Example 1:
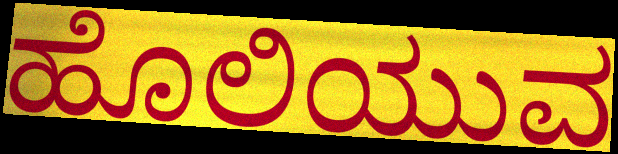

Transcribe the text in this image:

ಹೊಲಿಯುವ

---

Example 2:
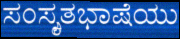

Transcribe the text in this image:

ಸಂಸ್ಕೃತಭಾಷೆಯು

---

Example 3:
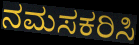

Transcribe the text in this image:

ನಮಸಕರಿಸಿ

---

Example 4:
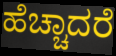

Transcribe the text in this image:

ಹೆಚ್ಚಾದರೆ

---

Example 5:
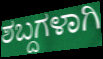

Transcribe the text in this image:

ಶಬ್ದಗಳಾಗಿ